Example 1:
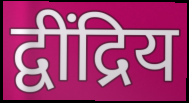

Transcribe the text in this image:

द्वींद्रिय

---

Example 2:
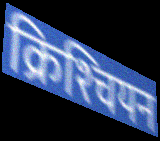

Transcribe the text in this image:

क्रिश्चियन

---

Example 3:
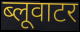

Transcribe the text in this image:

ब्लूवाटर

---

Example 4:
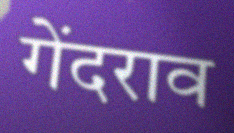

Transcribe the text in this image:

गेंदराव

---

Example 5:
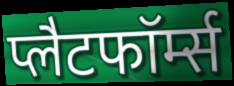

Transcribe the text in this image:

प्लैटफॉर्म्स